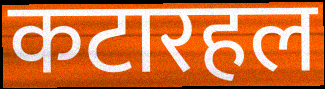
कटारहल